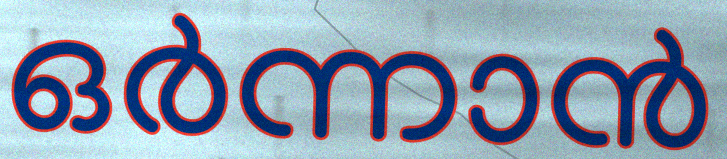
ഒർന്നാൻ